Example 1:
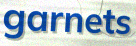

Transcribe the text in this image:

garnets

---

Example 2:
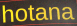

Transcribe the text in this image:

hotana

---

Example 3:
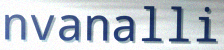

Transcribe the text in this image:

nvanalli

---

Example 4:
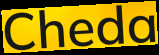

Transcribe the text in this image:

Cheda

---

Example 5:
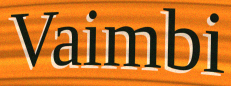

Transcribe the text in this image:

Vaimbi